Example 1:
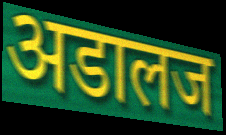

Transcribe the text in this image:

अडालज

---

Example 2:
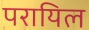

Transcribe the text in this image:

परायिल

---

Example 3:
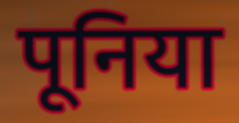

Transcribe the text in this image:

पूनिया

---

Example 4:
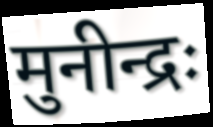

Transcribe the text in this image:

मुनीन्द्रः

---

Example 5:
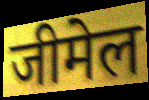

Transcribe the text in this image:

जीमेल